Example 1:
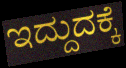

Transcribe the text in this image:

ಇದ್ದುದಕ್ಕೆ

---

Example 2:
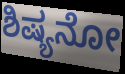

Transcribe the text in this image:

ಶಿಷ್ಯನೋ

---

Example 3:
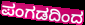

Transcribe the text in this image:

ಪಂಗಡದಿಂದ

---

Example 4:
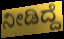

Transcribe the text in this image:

ನೀಡಿದ್ದೆ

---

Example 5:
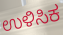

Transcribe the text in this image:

ಉಳಿಸಿಕ